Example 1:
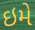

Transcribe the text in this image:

ઇમે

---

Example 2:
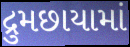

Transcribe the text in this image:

દ્રુમછાયામાં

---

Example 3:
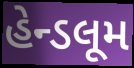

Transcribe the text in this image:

હેન્ડલૂમ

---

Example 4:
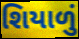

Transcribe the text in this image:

શિયાળું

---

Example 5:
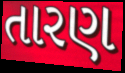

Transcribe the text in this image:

તારણ